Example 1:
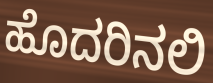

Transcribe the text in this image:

ಹೊದರಿನಲಿ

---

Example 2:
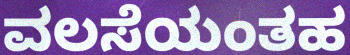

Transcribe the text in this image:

ವಲಸೆಯಂತಹ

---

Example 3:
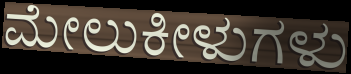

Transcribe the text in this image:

ಮೇಲುಕೀಳುಗಳು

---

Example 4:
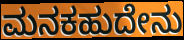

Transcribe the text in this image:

ಮನಕಹುದೇನು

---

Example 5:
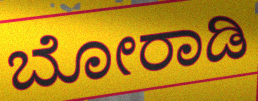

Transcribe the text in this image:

ಬೋರಾಡಿ